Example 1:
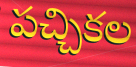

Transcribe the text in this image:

పచ్చికల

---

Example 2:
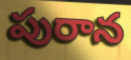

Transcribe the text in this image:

పురాన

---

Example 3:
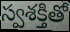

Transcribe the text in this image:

స్వశక్తితో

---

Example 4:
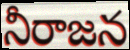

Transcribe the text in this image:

నీరాజన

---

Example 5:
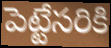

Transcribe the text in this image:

పెట్టేసరికి